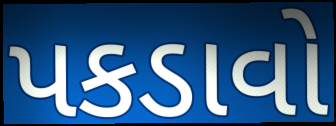
પકડાવો